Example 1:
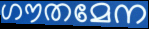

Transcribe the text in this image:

ഗൗതമേന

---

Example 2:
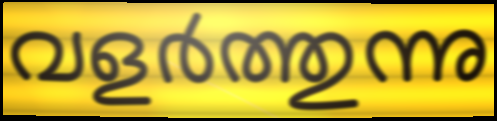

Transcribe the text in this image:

വളർത്തുന്നു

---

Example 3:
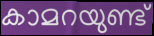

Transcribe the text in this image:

കാമറയുണ്ട്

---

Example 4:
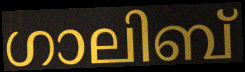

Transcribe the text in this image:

ഗാലിബ്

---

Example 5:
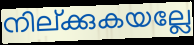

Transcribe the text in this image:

നില്ക്കുകയല്ലേ